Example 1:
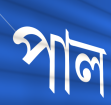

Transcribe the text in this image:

পাল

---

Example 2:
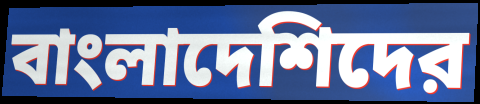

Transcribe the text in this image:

বাংলাদেশিদের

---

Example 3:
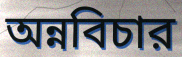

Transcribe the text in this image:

অন্নবিচার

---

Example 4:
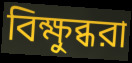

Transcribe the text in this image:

বিক্ষুব্ধরা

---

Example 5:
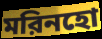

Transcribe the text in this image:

মরিনহো